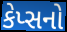
કેપ્સનો